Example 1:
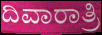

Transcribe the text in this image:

ದಿವಾರಾತ್ರಿ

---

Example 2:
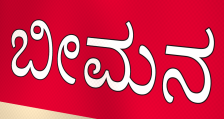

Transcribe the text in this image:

ಬೀಮನ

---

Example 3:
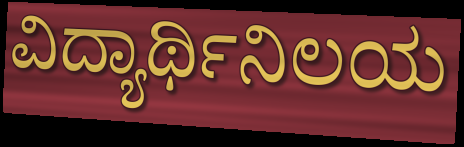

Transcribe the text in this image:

ವಿದ್ಯಾರ್ಥಿನಿಲಯ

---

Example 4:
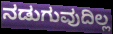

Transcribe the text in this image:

ನಡುಗುವುದಿಲ್ಲ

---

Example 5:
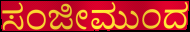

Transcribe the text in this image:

ಸಂಜೀಮುಂದ